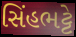
સિંહભટ્ટે